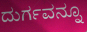
ದುರ್ಗವನ್ನೂ